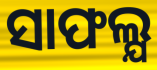
ସାଫଲ୍ଯ